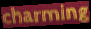
charming